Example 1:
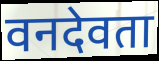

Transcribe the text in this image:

वनदेवता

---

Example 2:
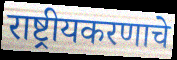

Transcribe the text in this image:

राष्ट्रीयकरणाचे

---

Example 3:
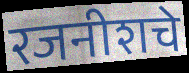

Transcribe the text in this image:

रजनीशचे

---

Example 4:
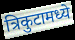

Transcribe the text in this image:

त्रिकुटामध्ये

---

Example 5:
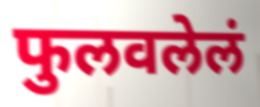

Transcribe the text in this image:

फुलवलेलं